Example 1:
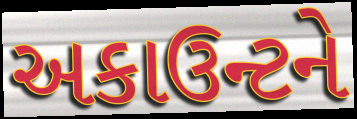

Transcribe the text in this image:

અકાઉન્ટને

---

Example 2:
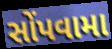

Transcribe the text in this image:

સોંપવામા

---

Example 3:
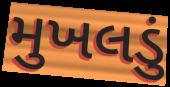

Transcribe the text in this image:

મુખલડું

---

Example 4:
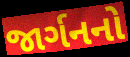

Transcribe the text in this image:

જાર્ગનનો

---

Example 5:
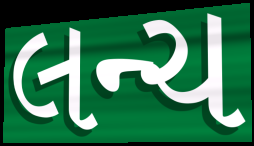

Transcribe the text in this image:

લન્ચ